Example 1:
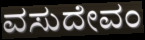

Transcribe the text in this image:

ವಸುದೇವಂ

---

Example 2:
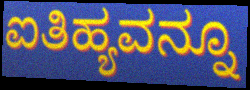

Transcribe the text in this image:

ಐತಿಹ್ಯವನ್ನೂ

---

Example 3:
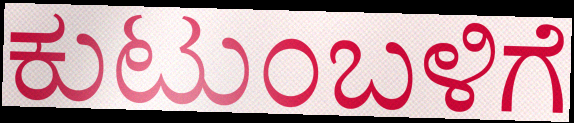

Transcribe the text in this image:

ಕುಟುಂಬಳಿಗೆ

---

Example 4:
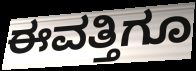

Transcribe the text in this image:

ಈವತ್ತಿಗೂ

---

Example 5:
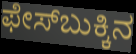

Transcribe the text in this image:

ಫೇಸ್‌ಬುಕ್ಕಿನ